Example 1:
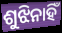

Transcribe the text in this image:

ଶୁଝିନାହିଁ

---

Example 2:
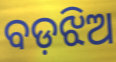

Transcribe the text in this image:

ବଡ଼ଝିଅ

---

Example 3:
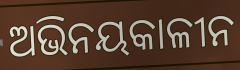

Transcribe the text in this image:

ଅଭିନୟକାଳୀନ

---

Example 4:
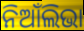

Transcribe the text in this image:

ନିଆଁଲିଭା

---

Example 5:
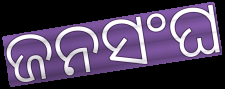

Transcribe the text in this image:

ଜନସଂଘ